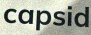
capsid